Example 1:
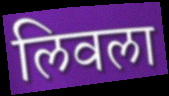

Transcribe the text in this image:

लिवला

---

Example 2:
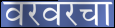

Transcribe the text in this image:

वरवरचा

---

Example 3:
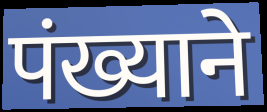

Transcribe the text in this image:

पंख्याने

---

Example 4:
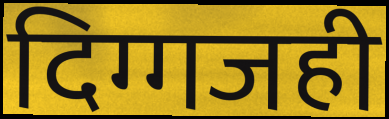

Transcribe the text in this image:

दिग्गजही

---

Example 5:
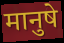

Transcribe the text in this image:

मानुषे